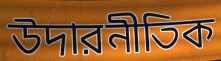
উদারনীতিক